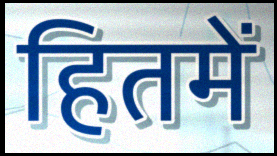
हितमें